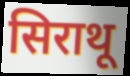
सिराथू